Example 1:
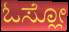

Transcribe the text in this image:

ಓಸ್ಲೋ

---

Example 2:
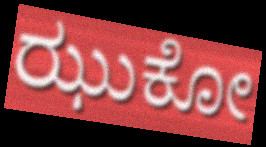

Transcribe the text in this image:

ಝುಕೋ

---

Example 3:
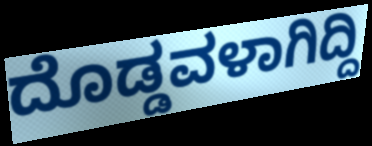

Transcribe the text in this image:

ದೊಡ್ಡವಳಾಗಿದ್ದಿ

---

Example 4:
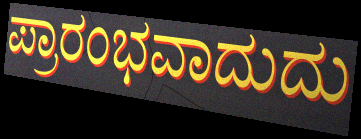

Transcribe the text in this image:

ಪ್ರಾರಂಭವಾದುದು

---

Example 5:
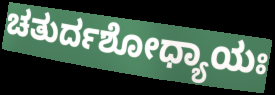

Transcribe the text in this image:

ಚತುರ್ದಶೋಧ್ಯಾಯಃ